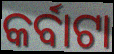
କର୍ବାଟା